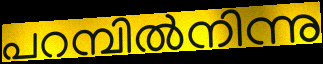
പറമ്പിൽനിന്നു